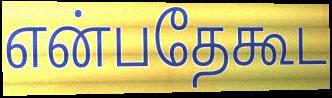
என்பதேகூட